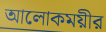
আলোকময়ীর